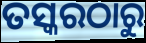
ତସ୍କରଠାରୁ